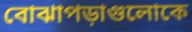
বোঝাপড়াগুলোকে